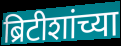
ब्रिटीशांच्या